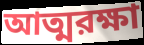
আত্মরক্ষা